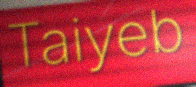
Taiyeb